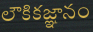
లౌకికజ్ఞానం